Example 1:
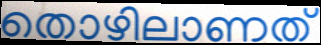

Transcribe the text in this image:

തൊഴിലാണത്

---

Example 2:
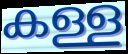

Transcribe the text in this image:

കള്ള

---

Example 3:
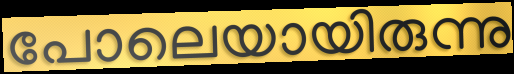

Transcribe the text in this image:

പോലെയായിരുന്നു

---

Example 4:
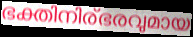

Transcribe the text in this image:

ഭക്തിനിര്ഭരവുമായ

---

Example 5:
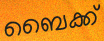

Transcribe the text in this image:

ബൈക്ക്